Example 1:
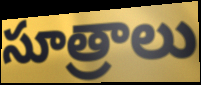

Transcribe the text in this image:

సూత్రాలు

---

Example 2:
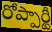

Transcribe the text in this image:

రోప్పార్టీ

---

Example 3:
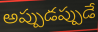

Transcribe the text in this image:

అప్పుడప్పుడే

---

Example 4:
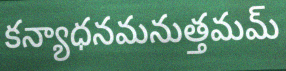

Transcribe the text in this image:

కన్యాధనమనుత్తమమ్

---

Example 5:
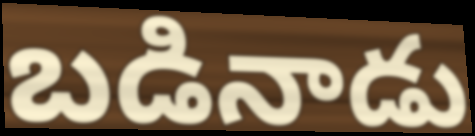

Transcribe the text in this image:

బడినాడు